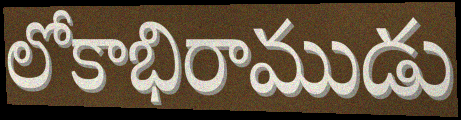
లోకాభిరాముడు